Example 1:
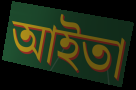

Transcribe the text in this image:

আইতা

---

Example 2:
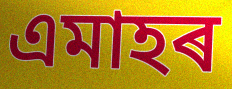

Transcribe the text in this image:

এমাহৰ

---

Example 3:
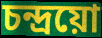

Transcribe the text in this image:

চন্দ্ৰয়ো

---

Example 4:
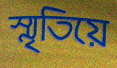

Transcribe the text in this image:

স্মৃতিয়ে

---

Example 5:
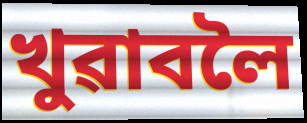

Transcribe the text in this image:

খুৱাবলৈ